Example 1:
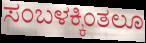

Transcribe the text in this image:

ಸಂಬಳಕ್ಕಿಂತಲೂ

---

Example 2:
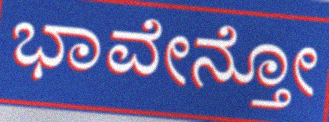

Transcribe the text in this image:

ಭಾವೇನ್ತೋ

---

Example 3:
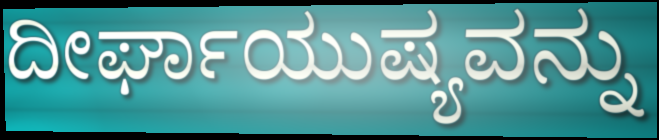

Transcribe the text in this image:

ದೀರ್ಘಾಯುಷ್ಯವನ್ನು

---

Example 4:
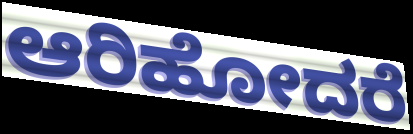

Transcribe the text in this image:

ಆರಿಹೋದರೆ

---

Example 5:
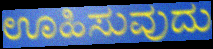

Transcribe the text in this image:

ಊಹಿಸುವುದು